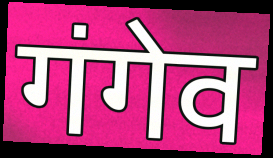
गंगेव